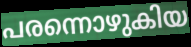
പരന്നൊഴുകിയ